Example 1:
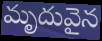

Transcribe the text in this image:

మృదువైన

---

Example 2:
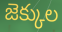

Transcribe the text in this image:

జెక్కుల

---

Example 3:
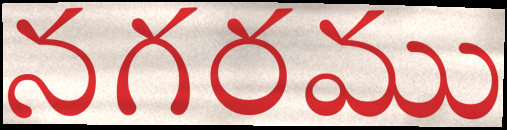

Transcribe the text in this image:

నగరము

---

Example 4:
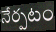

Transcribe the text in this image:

నేర్పటం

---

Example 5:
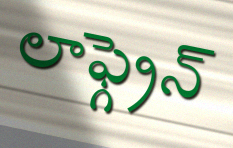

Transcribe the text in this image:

లాఫ్గ్రెన్